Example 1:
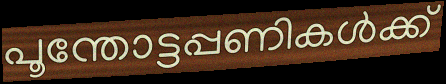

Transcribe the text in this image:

പൂന്തോട്ടപ്പണികൾക്ക്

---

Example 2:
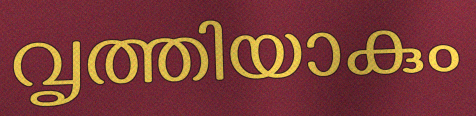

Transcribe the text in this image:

വൃത്തിയാകും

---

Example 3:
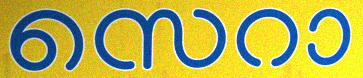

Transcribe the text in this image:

സെറാ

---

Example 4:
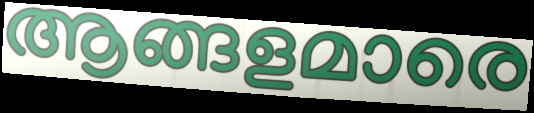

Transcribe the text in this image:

ആങ്ങളമാരെ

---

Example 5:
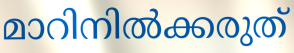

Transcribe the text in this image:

മാറിനിൽക്കരുത്